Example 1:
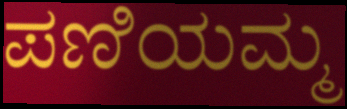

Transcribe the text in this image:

ಪಣಿಯಮ್ಮ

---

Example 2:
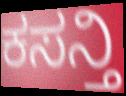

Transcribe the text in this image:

ಕಸನ್ತಿ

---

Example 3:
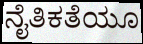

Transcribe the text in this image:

ನೈತಿಕತೆಯೂ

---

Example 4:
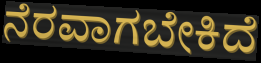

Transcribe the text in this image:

ನೆರವಾಗಬೇಕಿದೆ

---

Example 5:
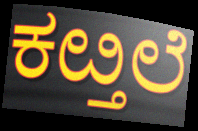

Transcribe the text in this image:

ಕೞ್ತಲೆ